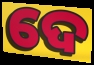
ଦେ